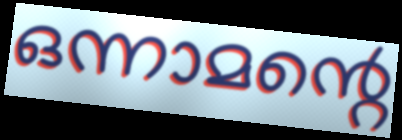
ഒന്നാമന്റെ